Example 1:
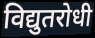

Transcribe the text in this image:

विद्युतरोधी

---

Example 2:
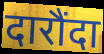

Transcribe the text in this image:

दारौंदा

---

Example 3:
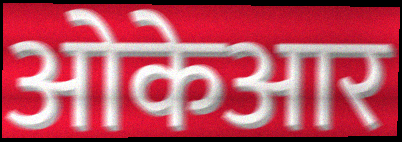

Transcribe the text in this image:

ओकेआर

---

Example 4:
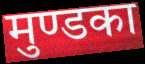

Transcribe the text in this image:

मुण्डका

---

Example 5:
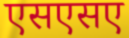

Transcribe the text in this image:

एसएसए